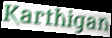
Karthigan